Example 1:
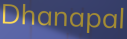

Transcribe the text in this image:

Dhanapal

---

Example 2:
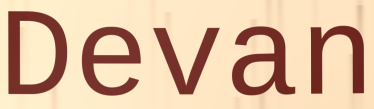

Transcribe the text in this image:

Devan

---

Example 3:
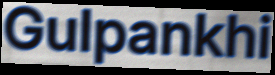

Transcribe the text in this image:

Gulpankhi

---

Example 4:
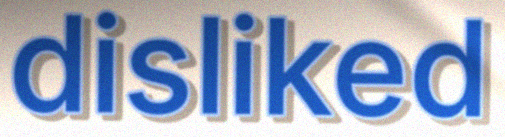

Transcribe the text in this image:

disliked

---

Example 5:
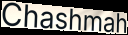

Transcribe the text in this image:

Chashmah